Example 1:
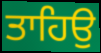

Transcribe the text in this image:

ਤਾਹਿਉ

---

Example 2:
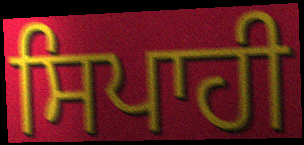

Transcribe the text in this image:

ਸਿਪਾਹੀ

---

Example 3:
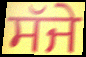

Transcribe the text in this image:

ਸੱਜੇ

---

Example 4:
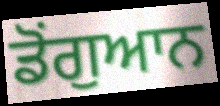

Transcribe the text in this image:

ਡੋਂਗੁਆਨ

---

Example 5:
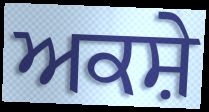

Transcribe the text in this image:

ਅਕਸ਼ੇ